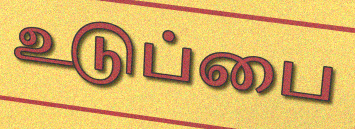
உடுப்பை